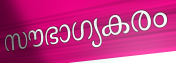
സൗഭാഗ്യകരം